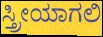
ಸ್ತ್ರೀಯಾಗಲಿ